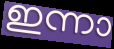
ഇന്നാ